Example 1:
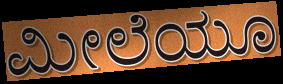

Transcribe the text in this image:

ಮೀಲೆಯೂ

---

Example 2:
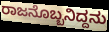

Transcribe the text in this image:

ರಾಜನೊಬ್ಬನಿದ್ದನು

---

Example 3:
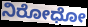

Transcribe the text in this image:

ನಿರೋಧೋ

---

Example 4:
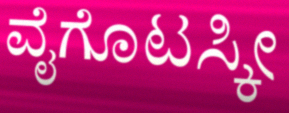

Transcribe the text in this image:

ವೈಗೊಟಸ್ಕೀ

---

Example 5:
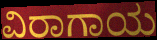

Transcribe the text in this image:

ವಿರಾಗಾಯ